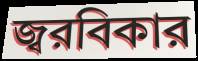
জ্বরবিকার